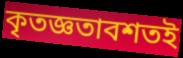
কৃতজ্ঞতাবশতই